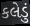
કલેડું